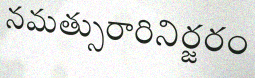
నమత్సురారినిర్జరం